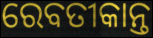
ରେବତୀକାନ୍ତ